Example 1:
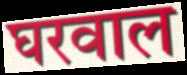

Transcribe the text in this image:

घरवाल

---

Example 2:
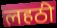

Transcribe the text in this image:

लहठी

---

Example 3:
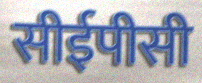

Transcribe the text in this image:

सीईपीसी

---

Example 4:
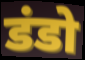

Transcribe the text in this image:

डंडो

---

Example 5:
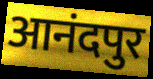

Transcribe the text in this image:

आनंदपुर